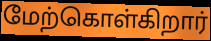
மேற்கொள்கிறார்